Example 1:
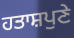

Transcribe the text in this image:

ਹਤਾਸ਼ਪੁਣੇ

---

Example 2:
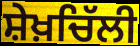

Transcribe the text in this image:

ਸ਼ੇਖ਼ਚਿੱਲੀ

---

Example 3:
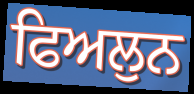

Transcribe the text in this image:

ਫਿਅਲੁਨ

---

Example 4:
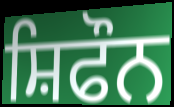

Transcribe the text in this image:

ਸ਼ਿਫੌਨ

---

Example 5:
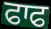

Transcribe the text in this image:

ਫਾਫ